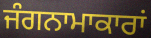
ਜੰਗਨਾਮਾਕਾਰਾਂ